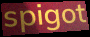
spigot